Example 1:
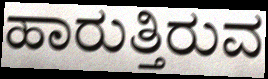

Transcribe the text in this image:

ಹಾರುತ್ತಿರುವ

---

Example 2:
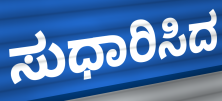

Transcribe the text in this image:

ಸುಧಾರಿಸಿದ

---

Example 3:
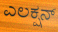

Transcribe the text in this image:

ಎಲಕ್ಷನ್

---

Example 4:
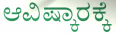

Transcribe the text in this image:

ಆವಿಷ್ಕಾರಕ್ಕೆ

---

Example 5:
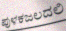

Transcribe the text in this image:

ಪುಳಕಜಲದಲಿ